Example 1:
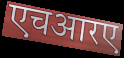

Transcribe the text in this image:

एचआरए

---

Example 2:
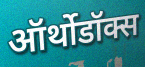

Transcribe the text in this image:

ऑर्थोडॉक्स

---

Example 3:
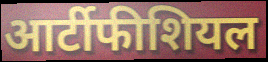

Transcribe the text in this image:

आर्टीफीशियल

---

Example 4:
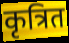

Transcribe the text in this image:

कृत्रित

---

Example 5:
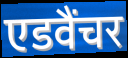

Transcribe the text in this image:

एडवैंचर